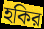
হকির